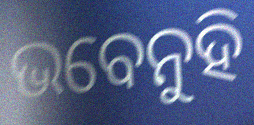
ଭବେନୁହି